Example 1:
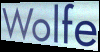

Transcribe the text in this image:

Wolfe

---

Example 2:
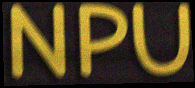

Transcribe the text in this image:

NPU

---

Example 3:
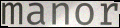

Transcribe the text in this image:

manor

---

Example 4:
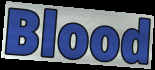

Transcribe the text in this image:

Blood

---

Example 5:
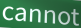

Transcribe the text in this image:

cannot